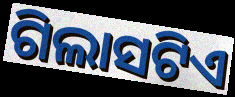
ଗିଲାସଟିଏ